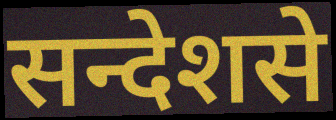
सन्देशसे